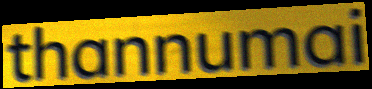
thannumai